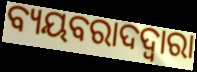
ବ୍ୟୟବରାଦଦ୍ଵାରା